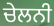
ਚੇਲਨੀ